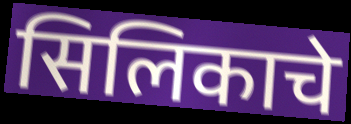
सिलिकाचे